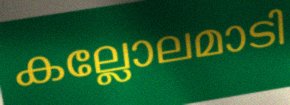
കല്ലോലമാടി